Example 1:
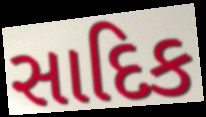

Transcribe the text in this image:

સાદિક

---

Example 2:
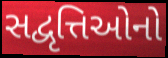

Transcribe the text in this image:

સદ્વૃત્તિઓનો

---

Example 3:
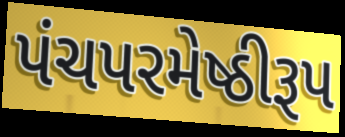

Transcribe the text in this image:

પંચપરમેષ્ઠીરૂપ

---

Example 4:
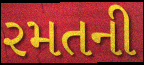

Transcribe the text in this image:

રમતની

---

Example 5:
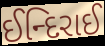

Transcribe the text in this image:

ઈન્દિરાઈ